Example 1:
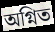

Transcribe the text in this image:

অগ্নিত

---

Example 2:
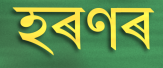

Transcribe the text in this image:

হৰণৰ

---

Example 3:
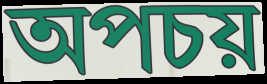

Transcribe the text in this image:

অপচয়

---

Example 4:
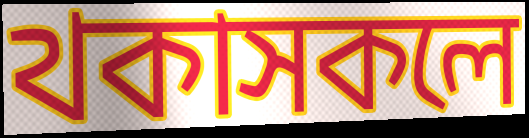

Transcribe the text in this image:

থকাসকলে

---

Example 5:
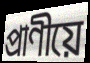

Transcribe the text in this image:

প্ৰাণীয়ে